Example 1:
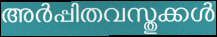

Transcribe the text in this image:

അർപ്പിതവസ്തുക്കൾ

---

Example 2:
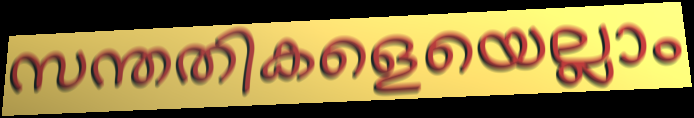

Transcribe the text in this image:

സന്തതികളെയെല്ലാം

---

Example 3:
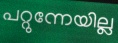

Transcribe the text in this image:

പറ്റുന്നേയില്ല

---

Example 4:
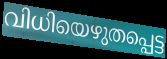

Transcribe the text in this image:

വിധിയെഴുതപ്പെട്ട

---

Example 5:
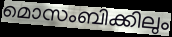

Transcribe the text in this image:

മൊസംബിക്കിലും